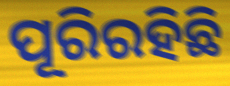
ପୂରିରହିଛି